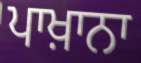
ਪਾਖ਼ਾਨਾ